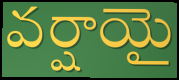
వర్షాయై